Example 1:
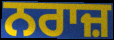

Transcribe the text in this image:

ਨਰਾਜ਼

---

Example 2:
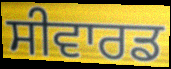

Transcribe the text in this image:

ਸੀਵਾਰਡ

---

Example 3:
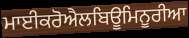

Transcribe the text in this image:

ਮਾਈਕਰੋਐਲਬਿਊਮਿਨੂਰੀਆ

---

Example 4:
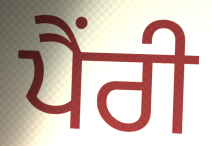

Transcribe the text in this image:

ਪੈਂਰੀ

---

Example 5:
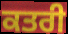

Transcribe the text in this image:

ਕਤਰੀ